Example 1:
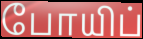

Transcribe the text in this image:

போயிப்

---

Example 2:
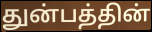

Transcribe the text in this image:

துன்பத்தின்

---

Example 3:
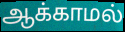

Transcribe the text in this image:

ஆக்காமல்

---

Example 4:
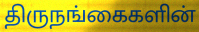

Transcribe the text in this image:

திருநங்கைகளின்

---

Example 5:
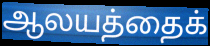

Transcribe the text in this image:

ஆலயத்தைக்